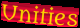
Unities